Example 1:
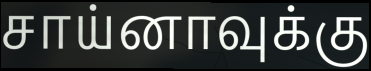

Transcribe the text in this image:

சாய்னாவுக்கு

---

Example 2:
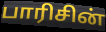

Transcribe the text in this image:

பாரிசின்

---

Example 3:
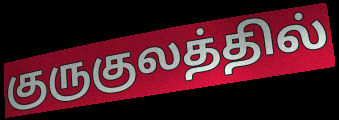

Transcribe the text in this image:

குருகுலத்தில்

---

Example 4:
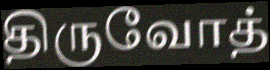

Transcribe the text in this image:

திருவோத்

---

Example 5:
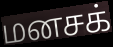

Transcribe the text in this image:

மனசக்